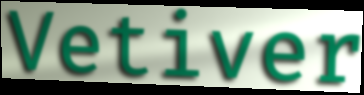
Vetiver